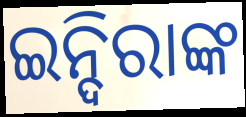
ଇନ୍ଦିରାଙ୍କ